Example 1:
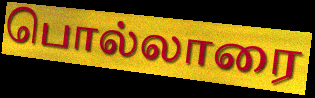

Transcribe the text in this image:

பொல்லாரை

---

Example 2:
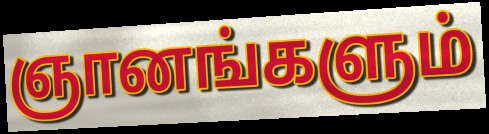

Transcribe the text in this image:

ஞானங்களும்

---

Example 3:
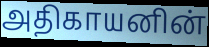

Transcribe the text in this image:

அதிகாயனின்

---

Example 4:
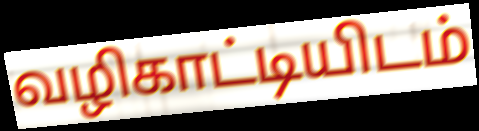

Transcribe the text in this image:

வழிகாட்டியிடம்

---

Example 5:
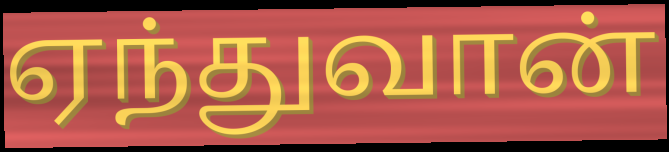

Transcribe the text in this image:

ஏந்துவான்